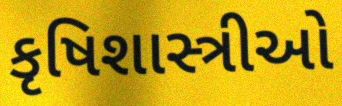
કૃષિશાસ્ત્રીઓ